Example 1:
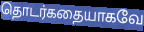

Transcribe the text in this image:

தொடர்கதையாகவே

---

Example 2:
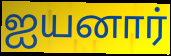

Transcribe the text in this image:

ஐயனார்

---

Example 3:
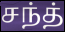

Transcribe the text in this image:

சந்த்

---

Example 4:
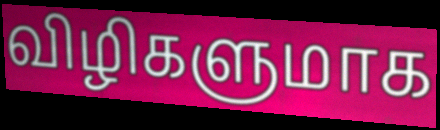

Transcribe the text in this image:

விழிகளுமாக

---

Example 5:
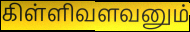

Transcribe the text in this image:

கிள்ளிவளவனும்